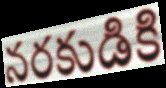
నరకుడికి